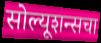
सोल्यूशन्सचा